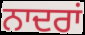
ਨਾਦਰਾਂ